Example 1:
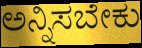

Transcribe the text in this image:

ಅನ್ನಿಸಬೇಕು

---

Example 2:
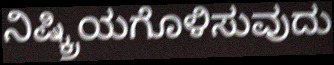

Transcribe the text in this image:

ನಿಷ್ಕ್ರಿಯಗೊಳಿಸುವುದು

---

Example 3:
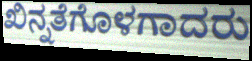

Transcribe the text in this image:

ಖಿನ್ನತೆಗೊಳಗಾದರು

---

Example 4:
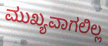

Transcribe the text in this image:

ಮುಖ್ಯವಾಗಲಿಲ್ಲ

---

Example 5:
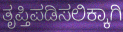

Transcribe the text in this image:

ತೃಪ್ತಿಪಡಿಸಲಿಕ್ಕಾಗಿ